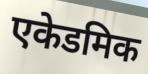
एकेडमिक